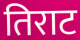
तिराट